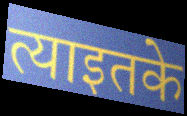
त्याइतके